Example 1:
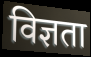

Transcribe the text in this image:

विज्ञता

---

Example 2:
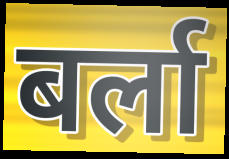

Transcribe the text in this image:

बर्ला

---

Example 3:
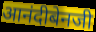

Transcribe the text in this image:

आनंदीबेनजी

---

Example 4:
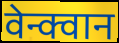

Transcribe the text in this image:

वेन्क्वान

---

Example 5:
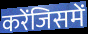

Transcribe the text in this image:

करेंजिसमें